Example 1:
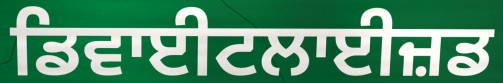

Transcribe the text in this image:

ਡਿਵਾਈਟਲਾਈਜ਼ਡ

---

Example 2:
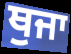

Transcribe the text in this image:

ਥੁਜਾ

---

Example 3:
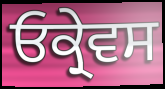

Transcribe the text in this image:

ਓਕ੍ਰੇਵਸ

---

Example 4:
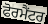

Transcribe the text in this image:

ਫੋਰਮੈਂਟਰ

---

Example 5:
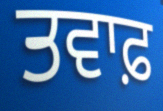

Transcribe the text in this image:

ਤਵਾਫ਼